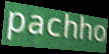
pachho